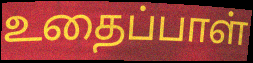
உதைப்பாள்